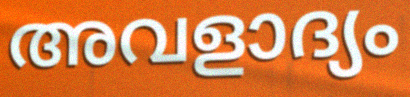
അവളാദ്യം